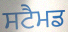
ਸਟੈਮਡ